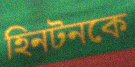
হিনটনকে